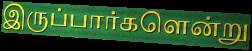
இருப்பார்களென்று